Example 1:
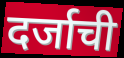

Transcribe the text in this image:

दर्जाची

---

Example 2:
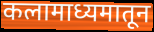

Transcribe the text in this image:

कलामाध्यमातून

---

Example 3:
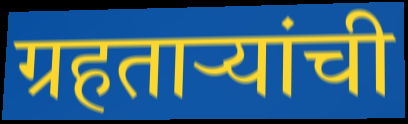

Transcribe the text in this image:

ग्रहताऱ्यांची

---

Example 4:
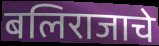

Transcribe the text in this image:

बलिराजाचे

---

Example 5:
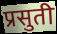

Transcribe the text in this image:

प्रसुती